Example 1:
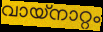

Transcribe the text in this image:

വായ്നാറ്റം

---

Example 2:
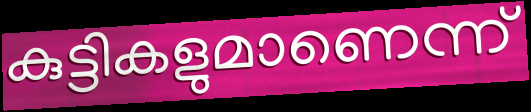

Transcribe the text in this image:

കുട്ടികളുമാണെന്ന്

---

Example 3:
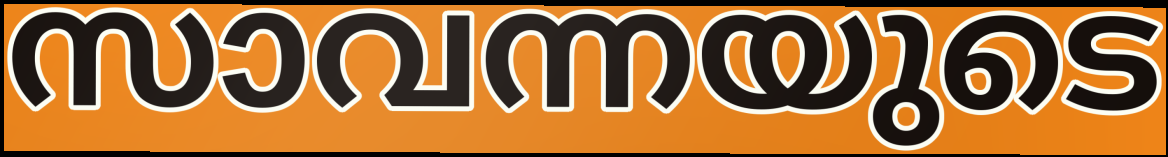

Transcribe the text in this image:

സാവന്നയുടെ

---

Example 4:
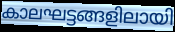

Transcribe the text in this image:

കാലഘട്ടങ്ങളിലായി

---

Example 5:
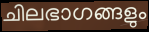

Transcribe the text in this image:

ചിലഭാഗങ്ങളും